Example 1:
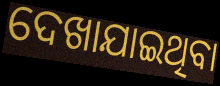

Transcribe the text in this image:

ଦେଖାଯାଇଥିବା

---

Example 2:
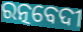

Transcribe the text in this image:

ରତ୍ନବେଦୀ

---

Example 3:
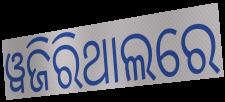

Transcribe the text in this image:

ୱଜିରିଥାଲରେ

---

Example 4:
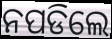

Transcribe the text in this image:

ନପଡିଲେ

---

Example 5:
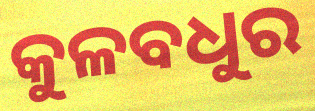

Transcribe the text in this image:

କୁଳବଧୁର